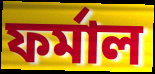
ফর্মাল